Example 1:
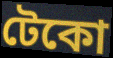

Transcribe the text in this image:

টেকো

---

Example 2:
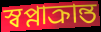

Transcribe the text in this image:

স্বপ্নাক্রান্ত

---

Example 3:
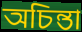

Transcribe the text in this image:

অচিন্তা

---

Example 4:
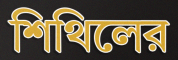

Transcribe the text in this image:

শিথিলের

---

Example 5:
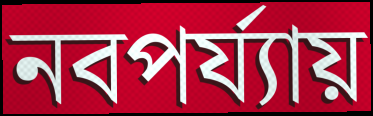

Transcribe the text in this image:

নবপর্য্যায়